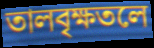
তালবৃক্ষতলে